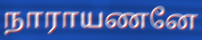
நாராயணனே